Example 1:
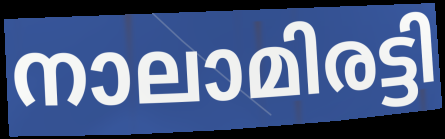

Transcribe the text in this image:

നാലാമിരട്ടി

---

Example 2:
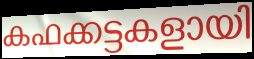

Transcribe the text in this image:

കഫക്കട്ടകളായി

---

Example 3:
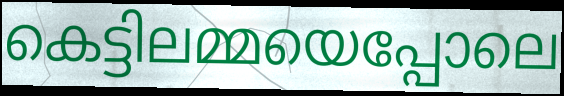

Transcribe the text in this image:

കെട്ടിലമ്മയെപ്പോലെ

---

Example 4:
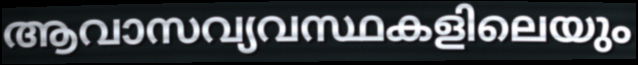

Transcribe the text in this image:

ആവാസവ്യവസ്ഥകളിലെയും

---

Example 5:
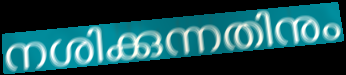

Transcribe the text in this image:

നശിക്കുന്നതിനും